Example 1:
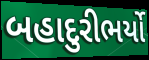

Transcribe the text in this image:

બહાદુરીભર્યો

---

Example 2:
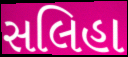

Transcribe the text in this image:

સલિહા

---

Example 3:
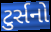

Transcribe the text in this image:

ટુર્સનો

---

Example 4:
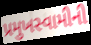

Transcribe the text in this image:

પ્રમુખસ્વામીની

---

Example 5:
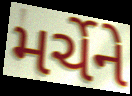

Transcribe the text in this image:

મર્ચેને